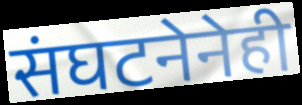
संघटनेनेही